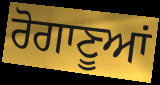
ਰੋਗਾਣੂਆਂ